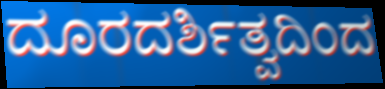
ದೂರದರ್ಶಿತ್ವದಿಂದ